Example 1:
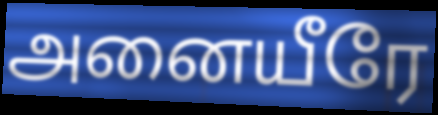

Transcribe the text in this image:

அனையீரே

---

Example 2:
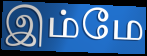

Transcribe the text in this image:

இம்மே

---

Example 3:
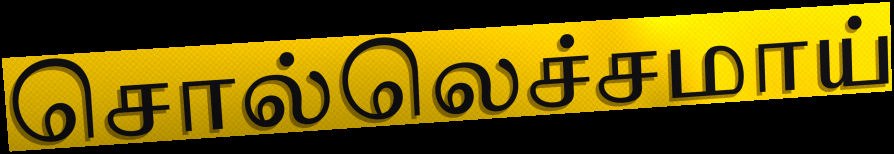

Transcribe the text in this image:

சொல்லெச்சமாய்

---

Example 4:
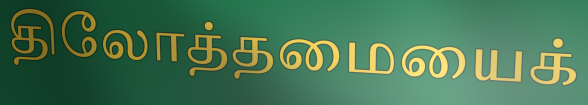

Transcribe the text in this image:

திலோத்தமையைக்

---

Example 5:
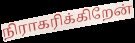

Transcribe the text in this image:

நிராகரிக்கிறேன்